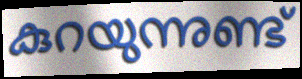
കുറയുന്നുണ്ട്